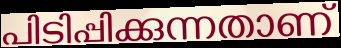
പിടിപ്പിക്കുന്നതാണ്